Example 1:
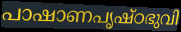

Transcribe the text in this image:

പാഷാണപൃഷ്ഠഭുവി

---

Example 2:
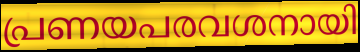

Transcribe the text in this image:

പ്രണയപരവശനായി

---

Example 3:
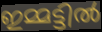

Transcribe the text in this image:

ഇമ്മട്ടിൽ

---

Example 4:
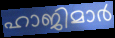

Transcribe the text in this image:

ഹാജിമാർ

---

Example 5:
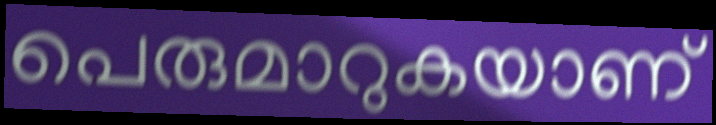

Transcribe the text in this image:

പെരുമാറുകയാണ്